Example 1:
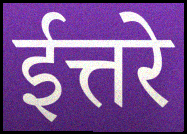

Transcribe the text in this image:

ईत्तरे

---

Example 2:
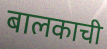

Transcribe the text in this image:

बालकाची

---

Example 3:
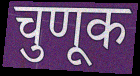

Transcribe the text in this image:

चुणूक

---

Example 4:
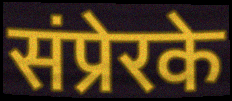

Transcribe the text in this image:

संप्रेरके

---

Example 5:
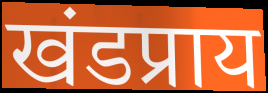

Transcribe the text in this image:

खंडप्राय